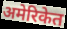
अमेरिकेत